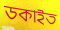
ডকাইত